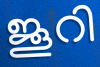
ജൂറി